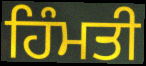
ਹਿੰਮਤੀ